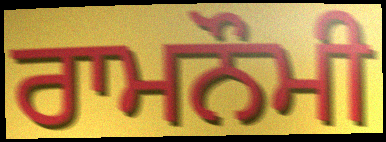
ਰਾਮਨੌਮੀ